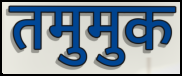
तमुमुक